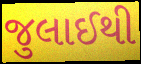
જુલાઈથી